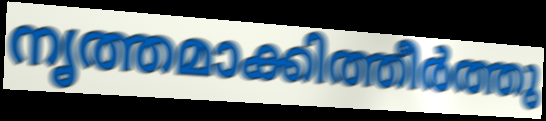
നൃത്തമാക്കിത്തീർത്തു